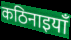
कठिनाइयाँ